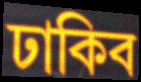
ঢাকিব